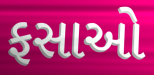
ફસાઓ